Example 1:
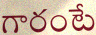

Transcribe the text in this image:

గారంటే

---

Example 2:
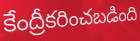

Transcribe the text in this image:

కేంద్రీకరించబడింది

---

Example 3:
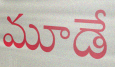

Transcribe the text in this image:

మూడే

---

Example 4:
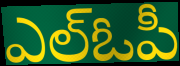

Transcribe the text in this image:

ఎల్ఓపీ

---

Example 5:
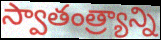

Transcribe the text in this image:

స్వాతంత్ర్యాన్ని